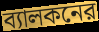
ব্যালকনের